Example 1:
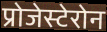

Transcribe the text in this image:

प्रोजेस्टेरोन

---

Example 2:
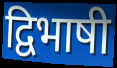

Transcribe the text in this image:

द्विभाषी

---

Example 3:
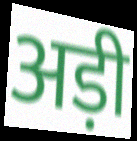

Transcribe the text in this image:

अड़ी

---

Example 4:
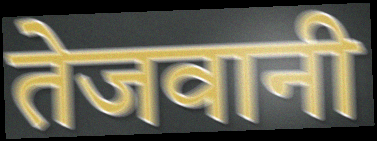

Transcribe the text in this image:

तेजवानी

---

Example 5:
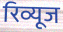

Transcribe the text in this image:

रिव्यूज